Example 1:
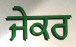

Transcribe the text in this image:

ਜੇਕਰ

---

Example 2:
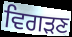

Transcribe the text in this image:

ਵਿਗੜਣ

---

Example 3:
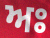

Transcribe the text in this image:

ਅਃ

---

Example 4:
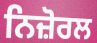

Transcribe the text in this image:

ਨਿਜ਼ੋਰਲ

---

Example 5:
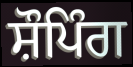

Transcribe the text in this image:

ਸ਼ੌਪਿੰਗ